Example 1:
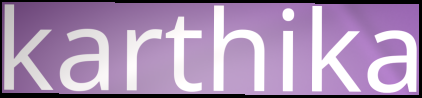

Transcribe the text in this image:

karthika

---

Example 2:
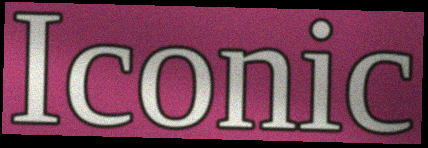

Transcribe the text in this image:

Iconic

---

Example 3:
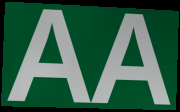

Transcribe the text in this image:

AA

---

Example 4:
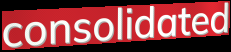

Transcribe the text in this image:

consolidated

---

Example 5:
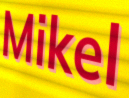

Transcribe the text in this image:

Mikel